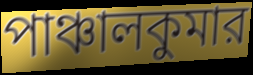
পাঞ্চালকুমার